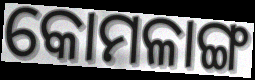
କୋମଳାଙ୍ଗ